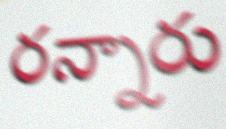
రన్నారు